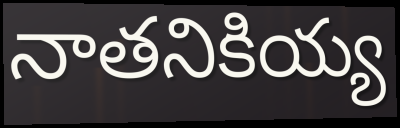
నాతనికియ్య